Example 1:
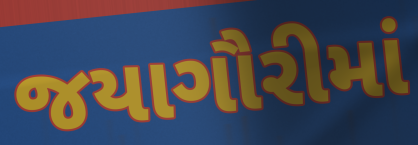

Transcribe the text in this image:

જયાગૌરીમાં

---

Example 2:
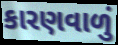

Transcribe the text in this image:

કારણવાળું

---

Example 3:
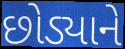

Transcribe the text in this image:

છોડ્યાને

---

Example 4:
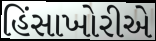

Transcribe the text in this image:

હિંસાખોરીએ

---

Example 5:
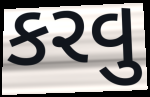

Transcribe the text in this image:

કરવુ